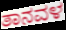
ತಾನವಳ